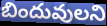
బిందువులని